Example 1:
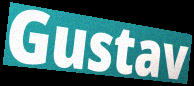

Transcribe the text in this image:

Gustav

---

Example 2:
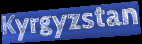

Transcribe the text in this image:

Kyrgyzstan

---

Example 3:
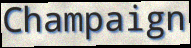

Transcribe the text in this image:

Champaign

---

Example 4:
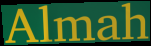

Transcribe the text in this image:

Almah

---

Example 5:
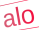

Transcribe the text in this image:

alo